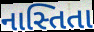
નાસ્તિતા